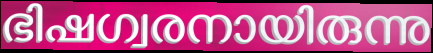
ഭിഷഗ്വരനായിരുന്നു